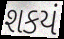
શકયં